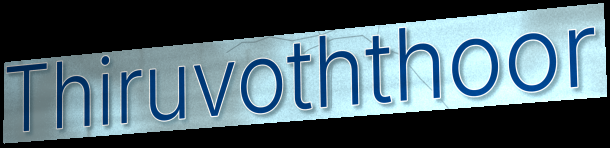
Thiruvoththoor